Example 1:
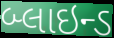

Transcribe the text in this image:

બ્લાઇન્ડ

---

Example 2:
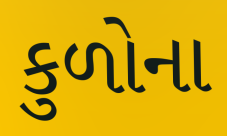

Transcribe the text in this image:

કુળોના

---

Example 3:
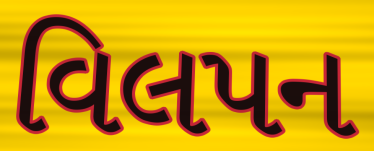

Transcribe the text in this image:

વિલપન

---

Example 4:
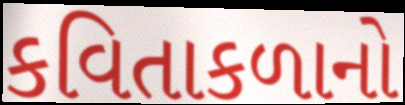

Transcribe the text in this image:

કવિતાકળાનો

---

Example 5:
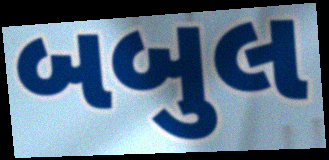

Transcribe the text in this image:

બબુલ